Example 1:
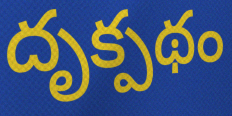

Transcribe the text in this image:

దృక్పథం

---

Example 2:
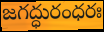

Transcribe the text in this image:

జగద్ధురంధరః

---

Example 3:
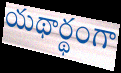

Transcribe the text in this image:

యథార్థంగా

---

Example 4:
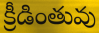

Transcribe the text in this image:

క్రీడింతువు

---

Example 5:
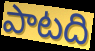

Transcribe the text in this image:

పాటది